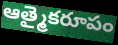
ఆత్మైకరూపం